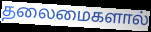
தலைமைகளால்